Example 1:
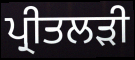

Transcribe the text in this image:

ਪ੍ਰੀਤਲੜੀ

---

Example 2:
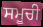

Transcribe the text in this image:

ਸਮੂਚੀ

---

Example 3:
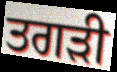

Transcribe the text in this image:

ਤਗੜੀ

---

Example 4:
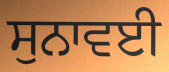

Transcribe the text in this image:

ਸੁਨਾਵਈ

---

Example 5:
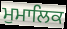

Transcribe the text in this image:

ਮੁਮਾਲਿਕ